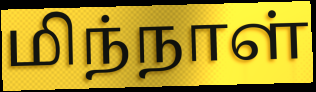
மிந்நாள்